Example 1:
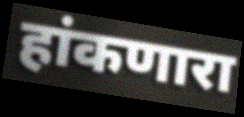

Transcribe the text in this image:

हांकणारा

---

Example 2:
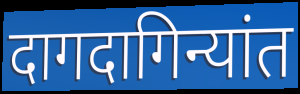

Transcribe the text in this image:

दागदागिन्यांत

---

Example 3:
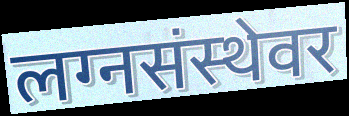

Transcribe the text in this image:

लग्नसंस्थेवर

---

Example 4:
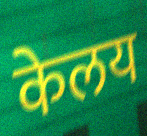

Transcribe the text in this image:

केलय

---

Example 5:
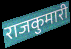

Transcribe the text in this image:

राजकुमारी